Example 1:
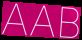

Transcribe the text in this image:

AAB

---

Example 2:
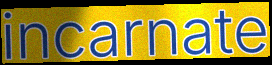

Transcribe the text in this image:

incarnate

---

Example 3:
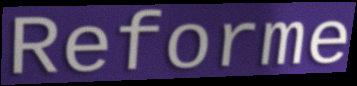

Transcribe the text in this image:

Reforme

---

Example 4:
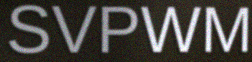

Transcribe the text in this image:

SVPWM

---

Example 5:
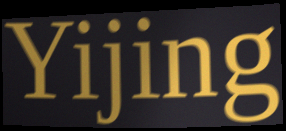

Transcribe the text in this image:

Yijing